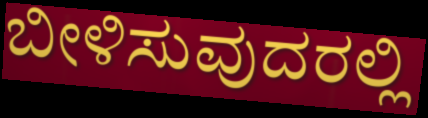
ಬೀಳಿಸುವುದರಲ್ಲಿ